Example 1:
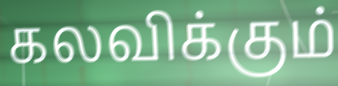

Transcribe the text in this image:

கலவிக்கும்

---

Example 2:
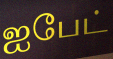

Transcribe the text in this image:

ஐபேட்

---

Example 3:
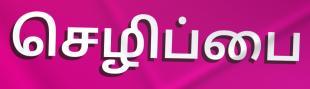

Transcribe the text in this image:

செழிப்பை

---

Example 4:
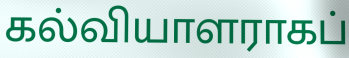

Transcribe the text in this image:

கல்வியாளராகப்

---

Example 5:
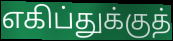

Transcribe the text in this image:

எகிப்துக்குத்